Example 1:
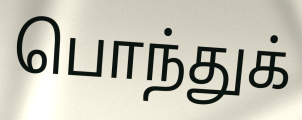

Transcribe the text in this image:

பொந்துக்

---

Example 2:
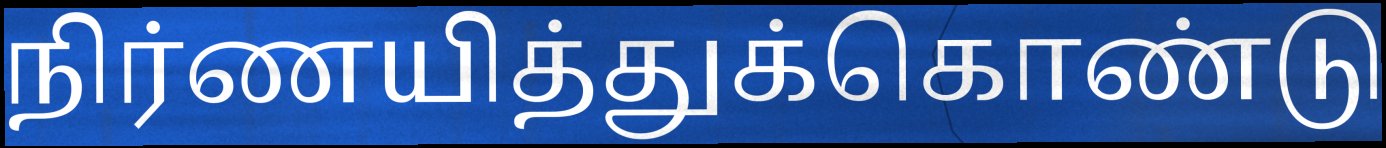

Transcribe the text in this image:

நிர்ணயித்துக்கொண்டு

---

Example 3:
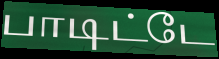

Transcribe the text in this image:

பாடிட்டே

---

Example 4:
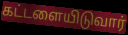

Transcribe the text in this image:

கட்டளையிடுவார்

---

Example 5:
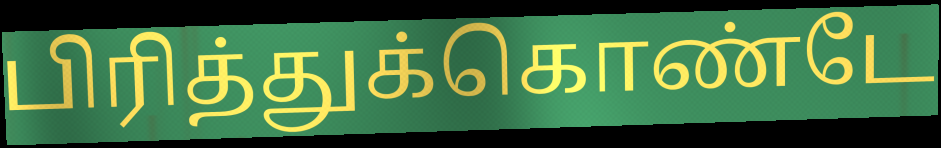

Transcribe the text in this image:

பிரித்துக்கொண்டே